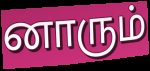
னாரும்